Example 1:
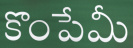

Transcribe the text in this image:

కొంపేమీ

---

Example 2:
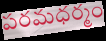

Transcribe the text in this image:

పరమధర్మం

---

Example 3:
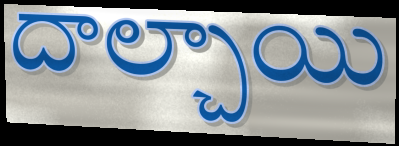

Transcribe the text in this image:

దాల్చాయి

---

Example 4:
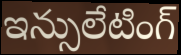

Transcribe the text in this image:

ఇన్సులేటింగ్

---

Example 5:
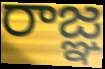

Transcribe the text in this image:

రాజ్ఞ